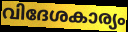
വിദേശകാര്യം